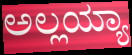
ಅಲ್ಲಯ್ಯಾ